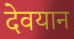
देवयान